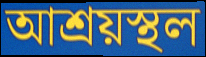
আশ্ৰয়স্থল